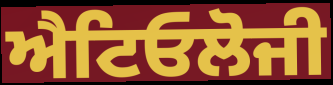
ਐਟਿਓਲੋਜੀ